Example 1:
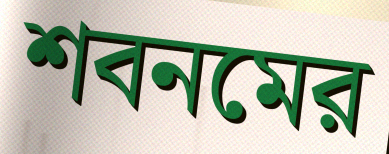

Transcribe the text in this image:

শবনমের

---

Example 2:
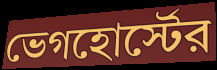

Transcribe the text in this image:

ভেগহোর্স্টের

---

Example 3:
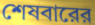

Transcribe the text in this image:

শেষবারের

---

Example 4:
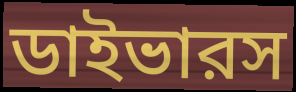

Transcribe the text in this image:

ডাইভারস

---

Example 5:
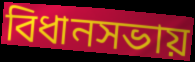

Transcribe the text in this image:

বিধানসভায়